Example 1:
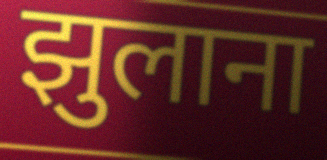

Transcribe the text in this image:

झुलाना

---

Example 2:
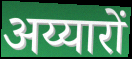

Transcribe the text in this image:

अय्यारों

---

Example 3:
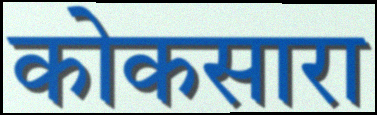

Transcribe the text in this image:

कोकसारा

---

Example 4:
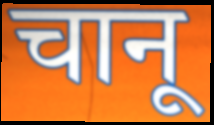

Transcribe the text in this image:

चानू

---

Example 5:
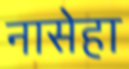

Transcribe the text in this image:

नासेहा